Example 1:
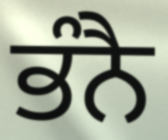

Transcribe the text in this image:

ਭੰਨੈ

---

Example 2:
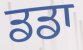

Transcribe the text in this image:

ਡਡਾ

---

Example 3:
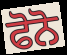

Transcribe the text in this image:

ਫੋਨੋ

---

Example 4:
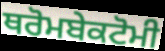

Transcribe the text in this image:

ਥਰੋਮਬੇਕਟੋਮੀ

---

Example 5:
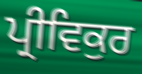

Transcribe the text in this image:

ਪ੍ਰੀਵਿਕੁਰ